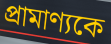
প্রামাণ্যকে